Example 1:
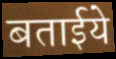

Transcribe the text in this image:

बताईये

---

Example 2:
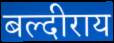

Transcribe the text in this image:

बल्दीराय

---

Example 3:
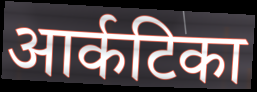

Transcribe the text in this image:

आर्कटिका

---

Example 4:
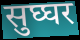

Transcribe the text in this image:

सुघ्घर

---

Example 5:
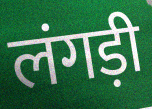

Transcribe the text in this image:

लंगड़ी